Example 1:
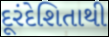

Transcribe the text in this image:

દૂરંદેશિતાથી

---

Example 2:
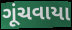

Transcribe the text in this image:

ગૂંચવાયા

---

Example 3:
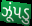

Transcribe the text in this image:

ઝૂંપડુ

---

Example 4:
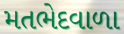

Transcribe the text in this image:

મતભેદવાળા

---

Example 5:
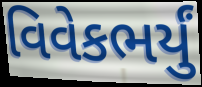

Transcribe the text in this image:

વિવેકભર્યું